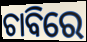
ଚାବିରେ